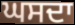
ਘਸਦਾ